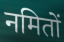
नमितों